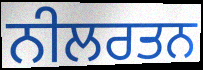
ਨੀਲਰਤਨ